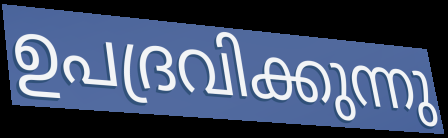
ഉപദ്രവിക്കുന്നു